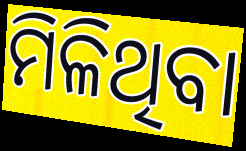
ମିଳିଥିବା